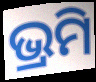
ଭ୍ରମି